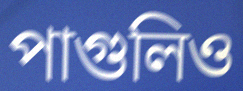
পাগুলিও